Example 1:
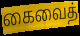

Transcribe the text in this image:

கைவைத்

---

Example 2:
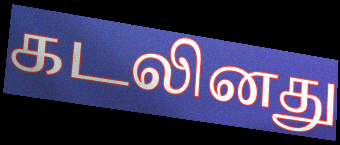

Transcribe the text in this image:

கடலினது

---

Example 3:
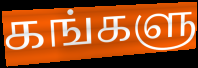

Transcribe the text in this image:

கங்களு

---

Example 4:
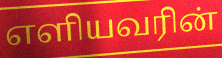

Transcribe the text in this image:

எளியவரின்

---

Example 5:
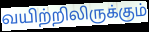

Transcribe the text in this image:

வயிற்றிலிருக்கும்